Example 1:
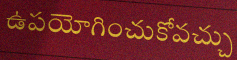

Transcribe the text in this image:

ఉపయోగించుకోవచ్చు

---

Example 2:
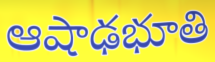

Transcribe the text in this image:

ఆషాఢభూతి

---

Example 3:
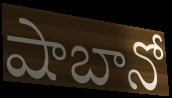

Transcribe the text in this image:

షాబానో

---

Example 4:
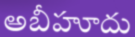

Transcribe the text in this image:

అబీహూదు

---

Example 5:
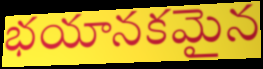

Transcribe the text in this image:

భయానకమైన